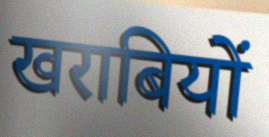
खराबियों